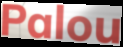
Palou